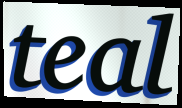
teal